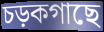
চড়কগাছে